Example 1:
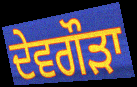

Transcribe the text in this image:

ਦੇਵਗੌੜਾ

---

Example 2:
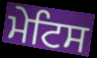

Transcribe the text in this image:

ਮੇਟਿਸ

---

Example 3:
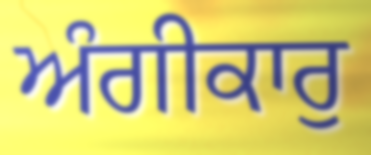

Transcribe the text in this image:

ਅੰਗੀਕਾਰੁ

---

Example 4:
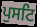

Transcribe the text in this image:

ਪੁਸਟਿ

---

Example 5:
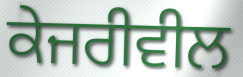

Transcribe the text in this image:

ਕੇਜਰੀਵੀਲ